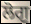
ਲੋਗੁ